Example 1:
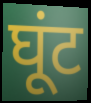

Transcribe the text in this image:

घूंट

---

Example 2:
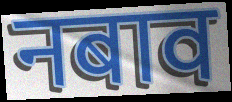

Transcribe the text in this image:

नबाव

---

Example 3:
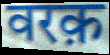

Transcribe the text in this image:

वरक़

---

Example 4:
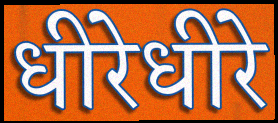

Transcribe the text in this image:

धीरेधीरे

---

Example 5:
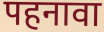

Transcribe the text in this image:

पहनावा